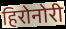
हिरोनोरी